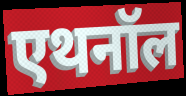
एथनॉल